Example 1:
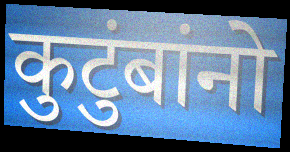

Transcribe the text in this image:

कुटुंबांनो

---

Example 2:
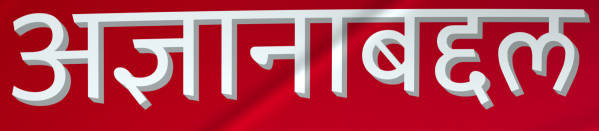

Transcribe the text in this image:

अज्ञानाबद्दल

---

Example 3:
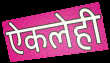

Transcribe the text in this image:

ऐकलेही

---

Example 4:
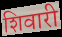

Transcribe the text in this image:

शिवारी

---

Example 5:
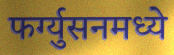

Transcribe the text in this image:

फर्ग्युसनमध्ये